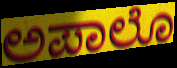
ಅಪಾಲೊ